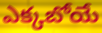
ఎక్కబోయే